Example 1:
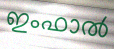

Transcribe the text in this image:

ഇംഫാൽ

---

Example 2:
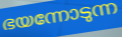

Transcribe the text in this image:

ഭയന്നോടുന്ന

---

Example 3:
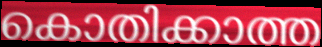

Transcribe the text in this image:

കൊതിക്കാത്ത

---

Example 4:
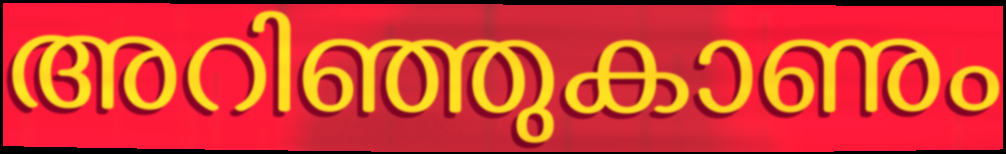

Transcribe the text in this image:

അറിഞ്ഞുകാണും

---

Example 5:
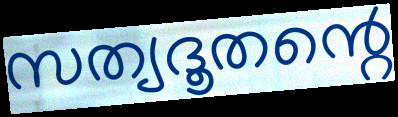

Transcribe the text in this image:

സത്യദൂതന്റെ